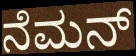
ನೆಮನ್